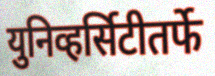
युनिव्हर्सिटीतर्फे